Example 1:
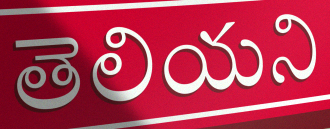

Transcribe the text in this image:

తెలియని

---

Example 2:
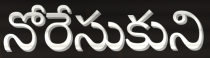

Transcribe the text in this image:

నోరేసుకుని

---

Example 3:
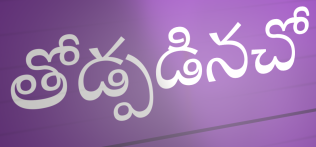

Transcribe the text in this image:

తోడ్పడినచో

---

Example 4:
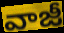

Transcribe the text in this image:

వాజీ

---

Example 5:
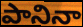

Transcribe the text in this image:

పానినా